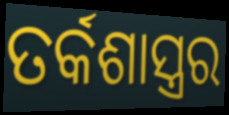
ତର୍କଶାସ୍ତ୍ରର